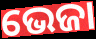
ଭେଜା